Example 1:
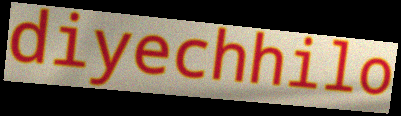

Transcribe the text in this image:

diyechhilo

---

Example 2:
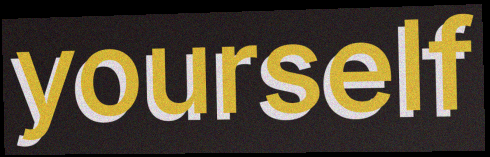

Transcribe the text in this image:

yourself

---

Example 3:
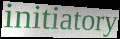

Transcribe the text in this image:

initiatory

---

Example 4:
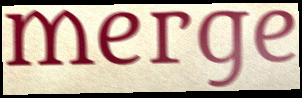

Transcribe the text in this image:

merge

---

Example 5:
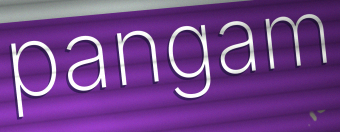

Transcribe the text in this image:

pangam